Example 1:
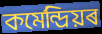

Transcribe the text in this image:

কৰ্মেন্দ্ৰিয়ৰ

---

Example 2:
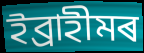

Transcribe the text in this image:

ইব্ৰাহীমৰ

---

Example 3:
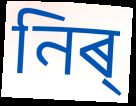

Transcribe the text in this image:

নিৰ্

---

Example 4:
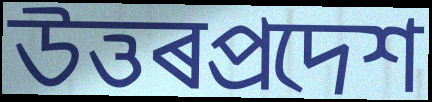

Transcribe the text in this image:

উত্তৰপ্ৰদেশ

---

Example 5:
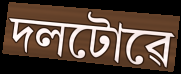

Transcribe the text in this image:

দলটোৱে